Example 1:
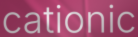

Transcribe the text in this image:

cationic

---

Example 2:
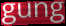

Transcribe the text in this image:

gung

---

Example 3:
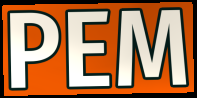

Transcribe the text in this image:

PEM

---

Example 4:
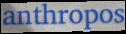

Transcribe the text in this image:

anthropos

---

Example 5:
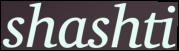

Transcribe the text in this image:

shashti